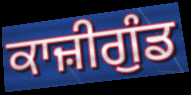
ਕਾਜ਼ੀਗੁੰਡ